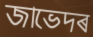
জাভেদৰ